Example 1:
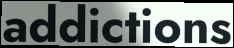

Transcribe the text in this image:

addictions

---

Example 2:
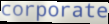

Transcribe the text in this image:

corporate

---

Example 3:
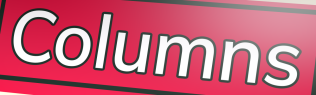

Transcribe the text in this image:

Columns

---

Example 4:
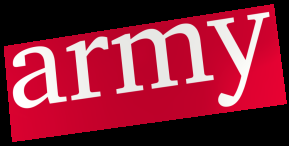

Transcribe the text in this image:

army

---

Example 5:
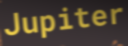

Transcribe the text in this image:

Jupiter